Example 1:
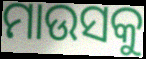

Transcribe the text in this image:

ମାଉସକୁ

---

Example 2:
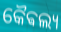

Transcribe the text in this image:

କୈଵଲ୍ୟ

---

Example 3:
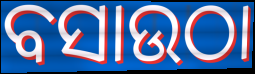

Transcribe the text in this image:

ବସାଉଠା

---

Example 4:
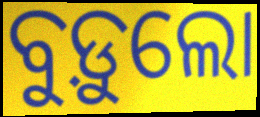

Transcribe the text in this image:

ବୁଡ଼ୁଲୋ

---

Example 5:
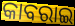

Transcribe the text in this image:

କାବରାଇ